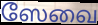
ஸேவை